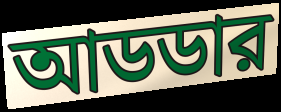
আডডার